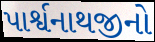
પાર્શ્વનાથજીનો